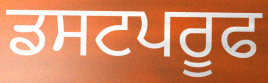
ਡਸਟਪਰੂਫ